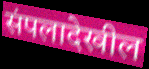
संपलादेखील